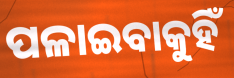
ପଳାଇବାକୁହିଁ